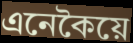
এনেকৈয়ে